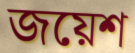
জয়েশ